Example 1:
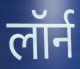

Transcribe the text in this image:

लॉर्न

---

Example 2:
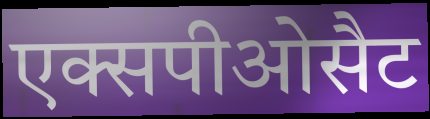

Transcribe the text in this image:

एक्सपीओसैट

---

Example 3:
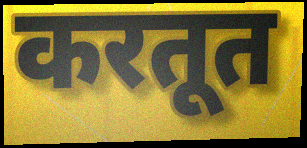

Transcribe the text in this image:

करतूत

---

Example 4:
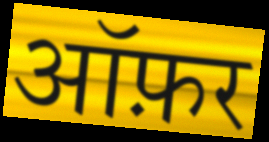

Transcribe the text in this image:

ऑफ़र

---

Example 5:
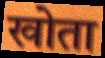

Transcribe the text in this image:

खोता